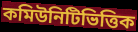
কমিউনিটিভিত্তিক